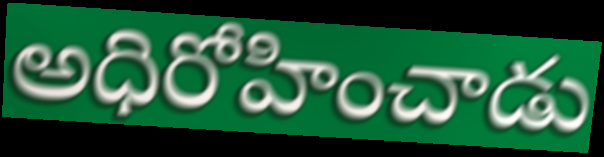
అధిరోహించాడు